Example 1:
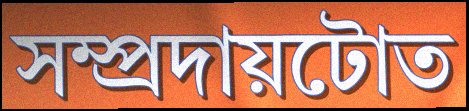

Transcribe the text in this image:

সম্প্ৰদায়টোত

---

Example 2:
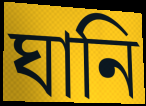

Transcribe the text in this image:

ঘানি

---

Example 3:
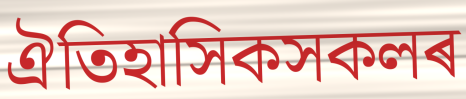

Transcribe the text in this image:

ঐতিহাসিকসকলৰ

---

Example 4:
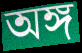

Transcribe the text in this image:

অঙ্গ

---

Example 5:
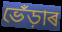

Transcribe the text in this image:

ভেঁড়াৰ